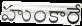
హుంకారే